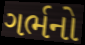
ગર્ભનો